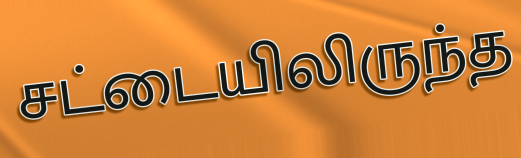
சட்டையிலிருந்த